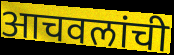
आचवलांची